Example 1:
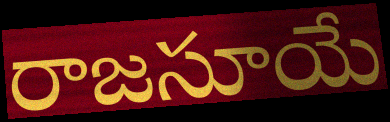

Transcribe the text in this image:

రాజసూయే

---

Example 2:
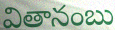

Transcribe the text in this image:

వితానంబు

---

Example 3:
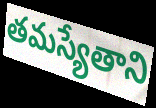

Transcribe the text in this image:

తమస్యేతాని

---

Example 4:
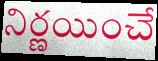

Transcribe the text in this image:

నిర్ణయించే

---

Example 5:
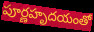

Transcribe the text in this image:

పూర్ణహృదయంతో